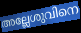
അല്ലേശുവിനെ